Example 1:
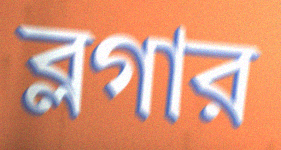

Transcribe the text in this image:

ব্লগার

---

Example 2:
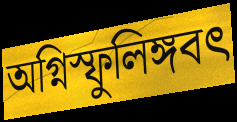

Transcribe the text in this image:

অগ্নিস্ফুলিঙ্গবৎ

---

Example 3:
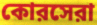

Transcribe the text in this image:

কোরসেরা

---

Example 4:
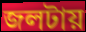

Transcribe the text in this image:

জলটায়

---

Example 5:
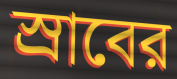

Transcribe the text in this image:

স্রাবের